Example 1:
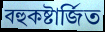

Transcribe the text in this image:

বহুকষ্টার্জিত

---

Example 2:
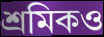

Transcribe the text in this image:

শ্রমিকও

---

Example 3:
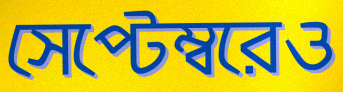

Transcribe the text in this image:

সেপ্টেম্বরেও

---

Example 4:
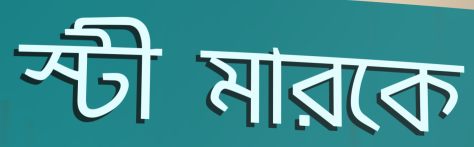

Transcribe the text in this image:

স্টীমারকে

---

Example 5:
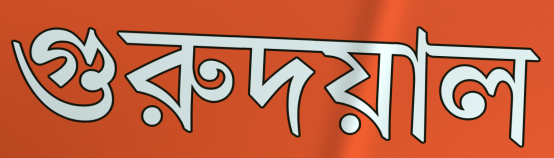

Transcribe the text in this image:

গুরুদয়াল